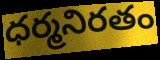
ధర్మనిరతం